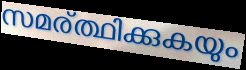
സമര്ത്ഥിക്കുകയും